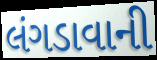
લંગડાવાની